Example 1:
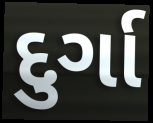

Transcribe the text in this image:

દુર્ગા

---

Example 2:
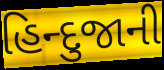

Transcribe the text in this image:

હિન્દુજાની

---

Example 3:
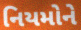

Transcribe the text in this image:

નિયમોને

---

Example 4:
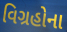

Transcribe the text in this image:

વિગ્રહોના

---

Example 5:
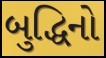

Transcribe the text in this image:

બુદ્ધિનો